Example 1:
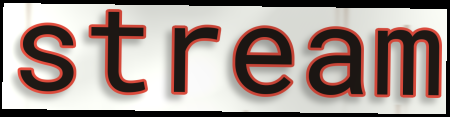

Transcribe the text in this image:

stream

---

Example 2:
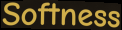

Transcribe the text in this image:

Softness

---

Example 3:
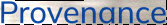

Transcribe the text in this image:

Provenance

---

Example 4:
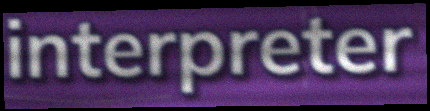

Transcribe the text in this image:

interpreter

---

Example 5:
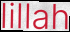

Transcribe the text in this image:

lillah